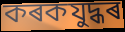
কৰকযুদ্ধৰ